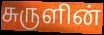
சுருளின்